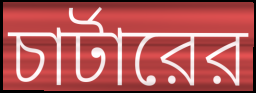
চার্টারের